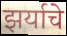
झर्याचे